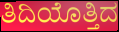
ತಿದಿಯೊತ್ತಿದ